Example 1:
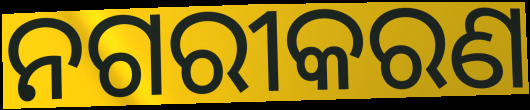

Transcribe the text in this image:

ନଗରୀକରଣ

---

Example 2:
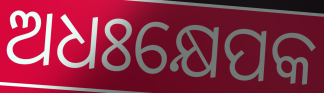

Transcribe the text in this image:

ଅଧଃକ୍ଷେପକ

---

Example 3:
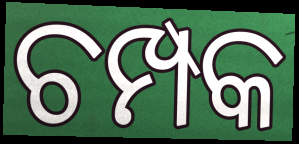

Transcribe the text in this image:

ଚମ୍ପକ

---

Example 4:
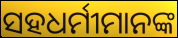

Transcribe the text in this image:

ସହଧର୍ମୀମାନଙ୍କ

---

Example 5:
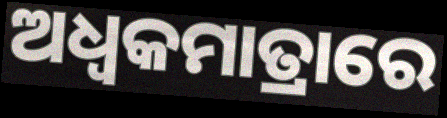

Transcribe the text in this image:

ଅଧ୍ଵକମାତ୍ରାରେ